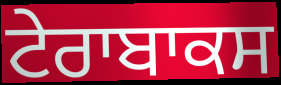
ਟੇਰਾਬਾਕਸ